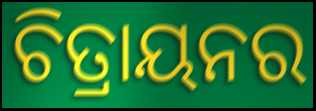
ଚିତ୍ରାୟନର